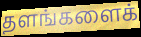
தளங்களைக்